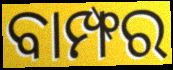
ବାମ୍ଫର